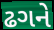
ઢગને